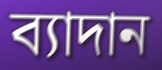
ব্যাদান